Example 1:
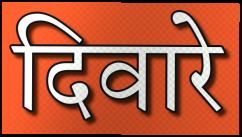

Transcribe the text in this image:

दिवारे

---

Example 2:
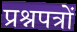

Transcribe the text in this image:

प्रश्नपत्रों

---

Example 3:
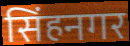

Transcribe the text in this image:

सिंहनगर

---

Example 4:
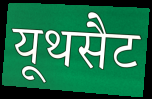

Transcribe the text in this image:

यूथसैट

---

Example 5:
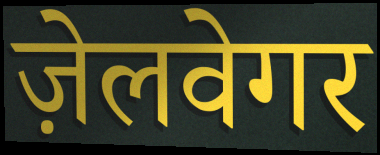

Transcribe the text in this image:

ज़ेलवेगर